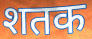
शतक